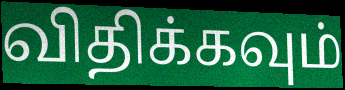
விதிக்கவும்